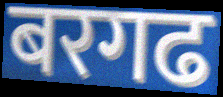
बरगढ